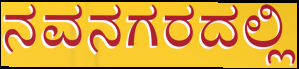
ನವನಗರದಲ್ಲಿ